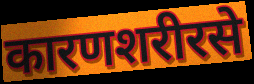
कारणशरीरसे